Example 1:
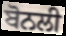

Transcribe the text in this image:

ਬੋਨਲੀ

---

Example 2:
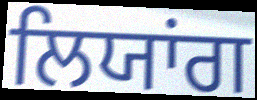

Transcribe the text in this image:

ਲਿਯਾਂਗ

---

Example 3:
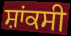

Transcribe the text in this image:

ਸ਼ਾਂਕਸੀ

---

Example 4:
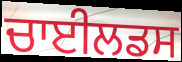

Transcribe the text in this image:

ਚਾਈਲਡਸ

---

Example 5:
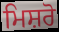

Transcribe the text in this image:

ਮਿਸ਼ਰੋ